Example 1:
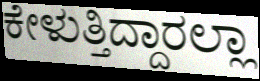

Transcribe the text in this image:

ಕೇಳುತ್ತಿದ್ದಾರಲ್ಲಾ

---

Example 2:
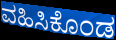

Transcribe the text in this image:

ವಹಿಸಿಕೊಂಡ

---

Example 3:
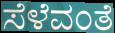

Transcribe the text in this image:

ಸೆಳೆವಂತೆ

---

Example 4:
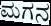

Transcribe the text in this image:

ಮಗನ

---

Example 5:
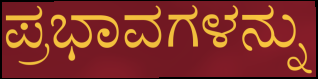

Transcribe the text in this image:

ಪ್ರಭಾವಗಳನ್ನು